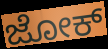
ಜೋಕ್